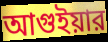
আগুইয়ার